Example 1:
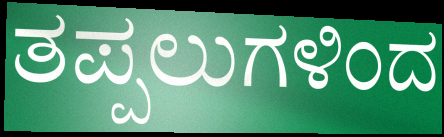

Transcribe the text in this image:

ತಪ್ಪಲುಗಳಿಂದ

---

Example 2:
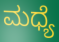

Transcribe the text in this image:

ಮಧ್ಯೆ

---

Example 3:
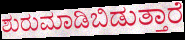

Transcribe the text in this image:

ಶುರುಮಾಡಿಬಿಡುತ್ತಾರೆ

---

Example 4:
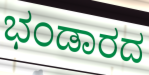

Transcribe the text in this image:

ಭಂಡಾರದ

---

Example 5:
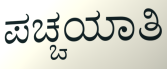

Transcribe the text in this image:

ಪಚ್ಚಯಾತಿ